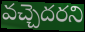
వచ్చెదరని